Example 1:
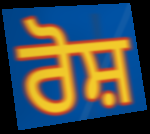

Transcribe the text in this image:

ਰੋਸ਼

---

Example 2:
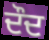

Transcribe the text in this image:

ਦੌਦ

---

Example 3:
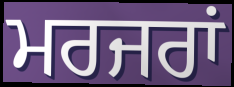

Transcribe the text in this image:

ਮਰਜਰਾਂ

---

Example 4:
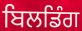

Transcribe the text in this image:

ਬਿਲਡਿੰਗ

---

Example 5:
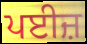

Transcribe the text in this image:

ਪਈਜ਼